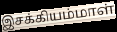
இசக்கியம்மாள்